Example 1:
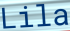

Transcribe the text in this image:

Lila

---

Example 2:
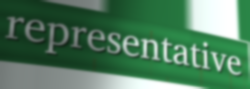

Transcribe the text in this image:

representative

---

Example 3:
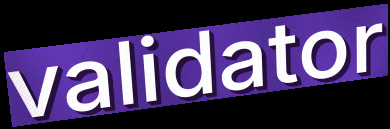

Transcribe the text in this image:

validator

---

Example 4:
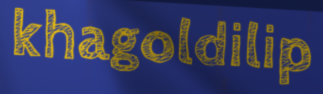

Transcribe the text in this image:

khagoldilip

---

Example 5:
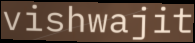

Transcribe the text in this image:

vishwajit